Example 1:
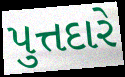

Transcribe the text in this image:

પુત્તદારે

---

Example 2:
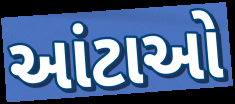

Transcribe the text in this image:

આંટાઓ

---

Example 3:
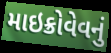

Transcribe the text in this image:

માઇક્રોવેવનું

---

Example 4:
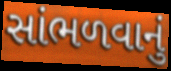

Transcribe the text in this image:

સાંભળવાનું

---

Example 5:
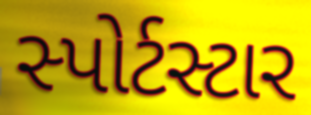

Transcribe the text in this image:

સ્પોર્ટસ્ટાર